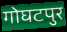
गोघटपुर